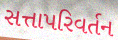
સત્તાપરિવર્તન